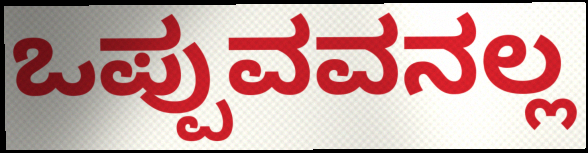
ಒಪ್ಪುವವನಲ್ಲ